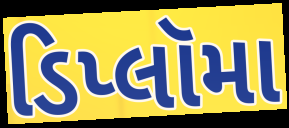
ડિપ્લૉમા